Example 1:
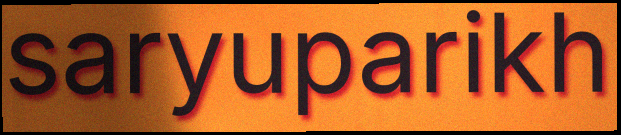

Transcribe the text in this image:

saryuparikh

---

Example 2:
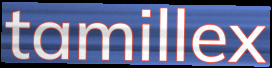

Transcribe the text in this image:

tamillex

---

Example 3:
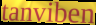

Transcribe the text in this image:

tanviben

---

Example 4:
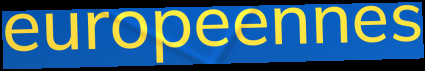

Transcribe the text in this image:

europeennes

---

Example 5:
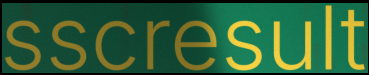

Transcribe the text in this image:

sscresult